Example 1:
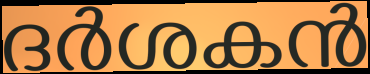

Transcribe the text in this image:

ദർശകൻ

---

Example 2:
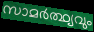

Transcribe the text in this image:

സാമർത്ഥ്യവും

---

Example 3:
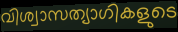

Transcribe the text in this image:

വിശ്വാസത്യാഗികളുടെ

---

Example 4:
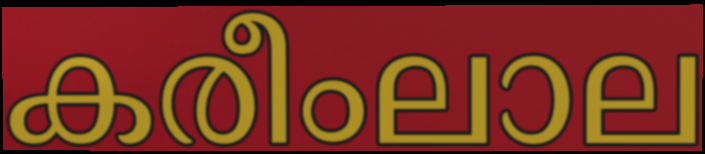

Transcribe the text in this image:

കരീംലാല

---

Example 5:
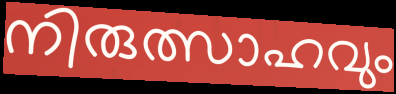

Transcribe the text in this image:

നിരുത്സാഹവും